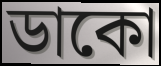
ডাকো